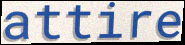
attire